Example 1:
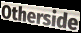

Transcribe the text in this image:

Otherside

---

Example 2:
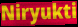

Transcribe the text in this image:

Niryukti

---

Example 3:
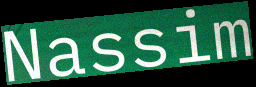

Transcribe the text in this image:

Nassim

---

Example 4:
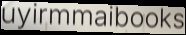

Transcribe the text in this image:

uyirmmaibooks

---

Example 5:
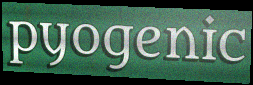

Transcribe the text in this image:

pyogenic